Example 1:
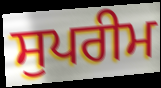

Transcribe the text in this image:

ਸੁਪਰੀਮ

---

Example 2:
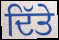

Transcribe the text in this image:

ਦਿੱਤੇ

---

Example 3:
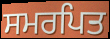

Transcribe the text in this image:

ਸਮਰਪਿਤ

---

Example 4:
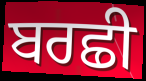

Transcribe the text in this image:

ਬਰਛੀ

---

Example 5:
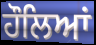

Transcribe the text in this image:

ਹੌਲਿਆਂ